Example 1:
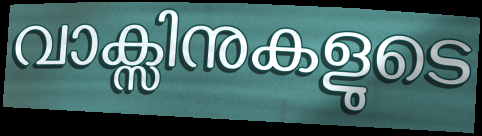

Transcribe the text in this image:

വാക്സിനുകളുടെ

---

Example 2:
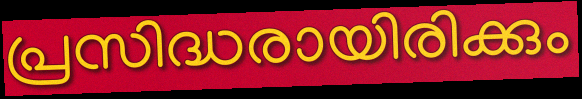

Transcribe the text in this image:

പ്രസിദ്ധരായിരിക്കും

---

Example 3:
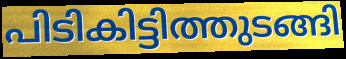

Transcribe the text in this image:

പിടികിട്ടിത്തുടങ്ങി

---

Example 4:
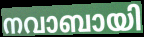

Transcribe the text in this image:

നവാബായി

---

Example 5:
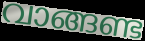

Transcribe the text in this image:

വാങ്ങണ്ട